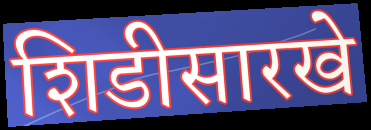
शिडीसारखे